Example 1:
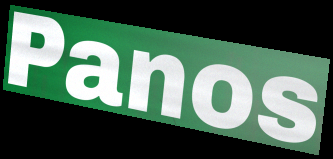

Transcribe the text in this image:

Panos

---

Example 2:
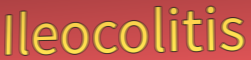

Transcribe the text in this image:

Ileocolitis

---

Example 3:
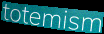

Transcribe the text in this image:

totemism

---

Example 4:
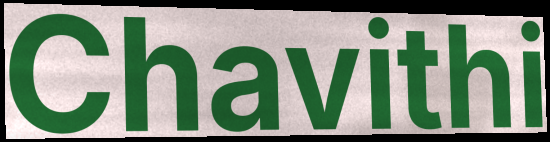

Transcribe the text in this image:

Chavithi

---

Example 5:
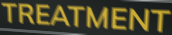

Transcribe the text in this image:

TREATMENT